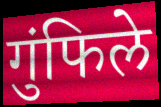
गुंफिले